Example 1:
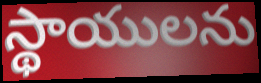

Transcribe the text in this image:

స్థాయులను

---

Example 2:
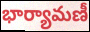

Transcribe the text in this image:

భార్యామణీ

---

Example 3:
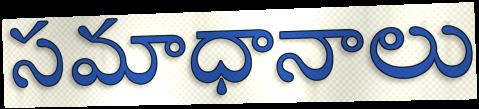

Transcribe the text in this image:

సమాధానాలు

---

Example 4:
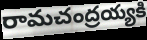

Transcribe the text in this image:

రామచంద్రయ్యకి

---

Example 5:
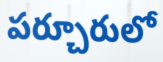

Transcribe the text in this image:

పర్చూరులో